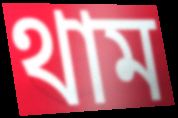
থাম